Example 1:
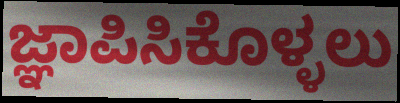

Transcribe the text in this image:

ಜ್ಞಾಪಿಸಿಕೊಳ್ಳಲು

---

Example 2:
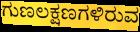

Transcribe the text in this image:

ಗುಣಲಕ್ಷಣಗಳಿರುವ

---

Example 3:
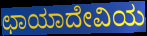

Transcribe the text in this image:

ಛಾಯಾದೇವಿಯ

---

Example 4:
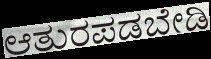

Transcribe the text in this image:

ಆತುರಪಡಬೇಡಿ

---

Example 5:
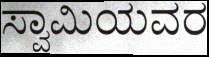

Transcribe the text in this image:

ಸ್ವಾಮಿಯವರ